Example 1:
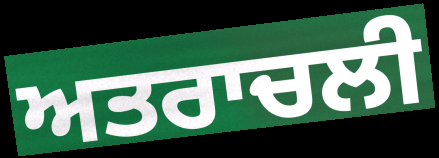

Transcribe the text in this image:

ਅਤਰਾਚਲੀ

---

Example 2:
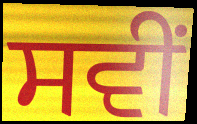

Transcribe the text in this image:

ਸਵੀਂ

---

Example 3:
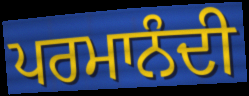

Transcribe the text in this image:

ਪਰਮਾਨੰਦੀ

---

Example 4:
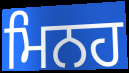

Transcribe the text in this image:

ਮਿਨਹ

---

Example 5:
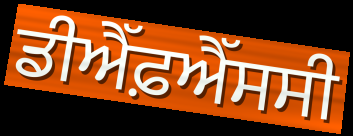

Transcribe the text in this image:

ਡੀਐੱਫ਼ਐੱਸਸੀ